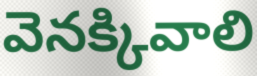
వెనక్కివాలి